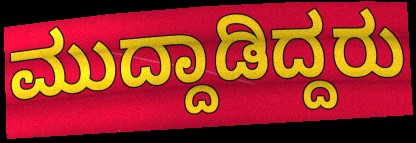
ಮುದ್ದಾಡಿದ್ದರು